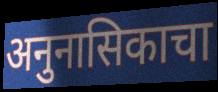
अनुनासिकाचा